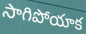
సాగిపోయాక